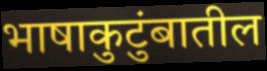
भाषाकुटुंबातील